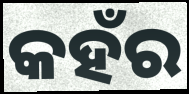
କହଁର